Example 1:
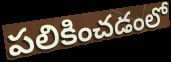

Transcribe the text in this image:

పలికించడంలో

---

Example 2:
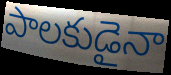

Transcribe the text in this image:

పాలకుడైనా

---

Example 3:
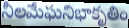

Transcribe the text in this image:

నీలమేఘనిభాకృతిం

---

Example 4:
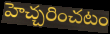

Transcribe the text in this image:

హెచ్చరించటం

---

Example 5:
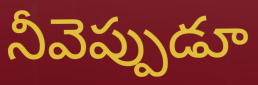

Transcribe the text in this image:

నీవెప్పుడూ